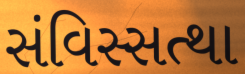
સંવિસ્સત્થા